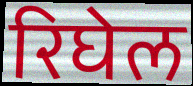
रिघेल